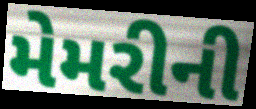
મેમરીની